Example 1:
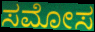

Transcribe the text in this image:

ಸಮೋಸ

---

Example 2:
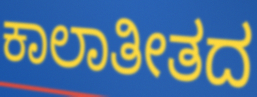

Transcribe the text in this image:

ಕಾಲಾತೀತದ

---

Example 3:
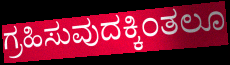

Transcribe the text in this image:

ಗ್ರಹಿಸುವುದಕ್ಕಿಂತಲೂ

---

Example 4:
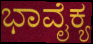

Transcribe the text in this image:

ಭಾವೈಕ್ಯ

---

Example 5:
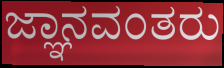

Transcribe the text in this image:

ಜ್ಞಾನವಂತರು